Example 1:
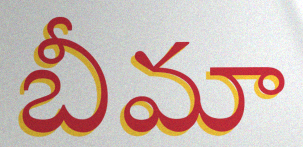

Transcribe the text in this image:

బీమా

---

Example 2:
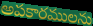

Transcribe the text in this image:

అపకారములను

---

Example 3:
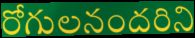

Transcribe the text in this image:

రోగులనందరిని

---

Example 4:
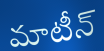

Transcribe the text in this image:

మాటీన్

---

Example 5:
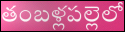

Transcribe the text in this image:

తంబళ్లపల్లెలో